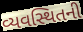
વ્યવસ્થિતની